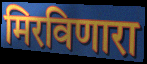
मिरविणारा